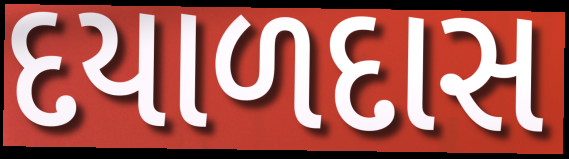
દયાળદાસ